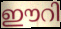
ഈറി